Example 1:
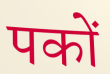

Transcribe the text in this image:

पकों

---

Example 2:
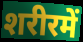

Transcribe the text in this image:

शरीरमें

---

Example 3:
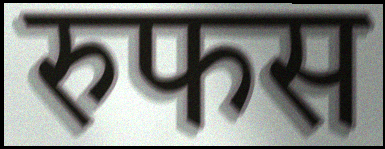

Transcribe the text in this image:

रुफस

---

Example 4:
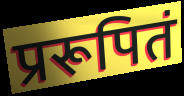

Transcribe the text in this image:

प्ररूपितं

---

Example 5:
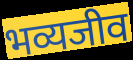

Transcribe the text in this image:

भव्यजीव